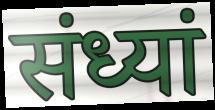
संध्यां